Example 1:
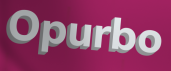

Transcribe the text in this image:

Opurbo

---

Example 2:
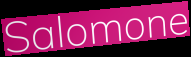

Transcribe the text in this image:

Salomone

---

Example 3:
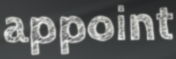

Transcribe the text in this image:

appoint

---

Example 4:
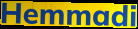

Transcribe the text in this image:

Hemmadi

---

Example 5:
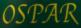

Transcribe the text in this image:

OSPAR